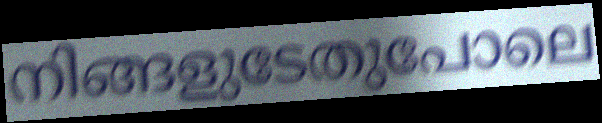
നിങ്ങളുടേതുപോലെ